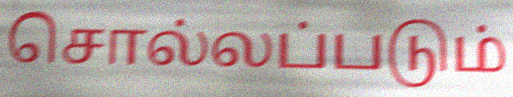
சொல்லப்படும்